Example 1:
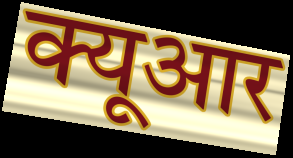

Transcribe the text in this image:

क्यूआर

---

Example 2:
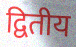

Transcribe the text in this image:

द्वितीय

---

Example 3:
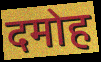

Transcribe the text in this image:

दमोह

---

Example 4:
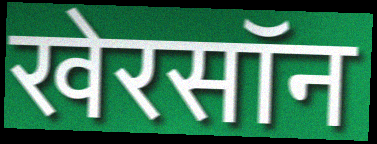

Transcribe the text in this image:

खेरसॉन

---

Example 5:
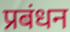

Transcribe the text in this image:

प्रबंधन